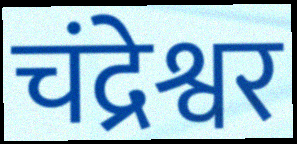
चंद्रेश्वर